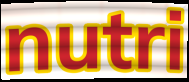
nutri